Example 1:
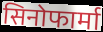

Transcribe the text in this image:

सिनोफार्मा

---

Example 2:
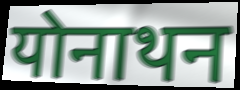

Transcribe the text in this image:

योनाथन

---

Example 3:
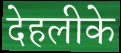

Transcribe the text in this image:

देहलीके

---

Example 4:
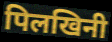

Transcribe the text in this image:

पिलखिनी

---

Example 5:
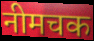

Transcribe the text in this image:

नीमचक